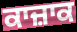
ਕਾਜ਼ਾਕ